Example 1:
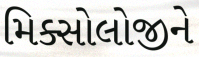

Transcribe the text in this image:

મિક્સોલોજીને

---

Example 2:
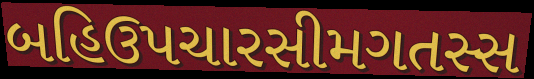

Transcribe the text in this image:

બહિઉપચારસીમગતસ્સ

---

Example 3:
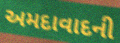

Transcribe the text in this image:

અમદાવાદની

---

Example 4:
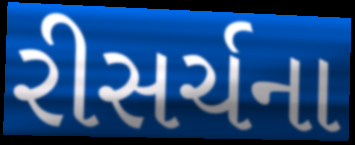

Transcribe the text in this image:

રીસર્ચના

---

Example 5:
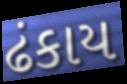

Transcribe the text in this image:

ઢંકાય